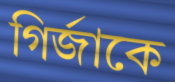
গির্জাকে